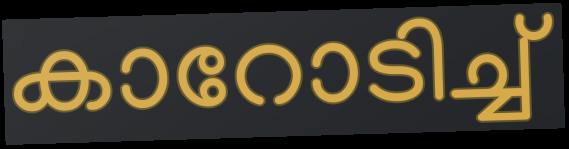
കാറോടിച്ച്